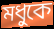
মধুকে